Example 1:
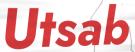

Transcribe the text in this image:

Utsab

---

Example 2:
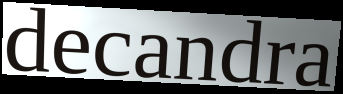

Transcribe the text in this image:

decandra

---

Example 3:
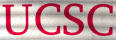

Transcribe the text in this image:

UCSC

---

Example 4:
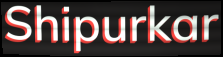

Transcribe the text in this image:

Shipurkar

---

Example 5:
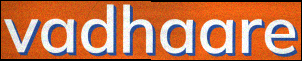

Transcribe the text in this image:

vadhaare